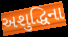
અશુદ્ધિના